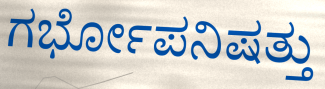
ಗರ್ಭೋಪನಿಷತ್ತು